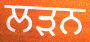
ਲਡ਼ਨ